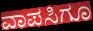
ವಾಪಸಿಗೂ